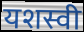
यशस्वी